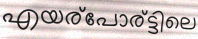
എയര്പോര്ട്ടിലെ